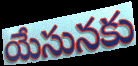
యేసునకు